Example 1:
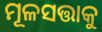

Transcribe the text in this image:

ମୂଳସତ୍ତାକୁ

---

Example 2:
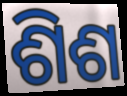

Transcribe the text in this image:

ଶିଶ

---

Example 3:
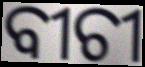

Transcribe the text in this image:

ବୀଚୀ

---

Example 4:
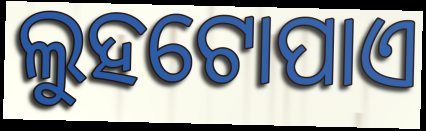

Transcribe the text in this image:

ଲୁହଟୋପାଏ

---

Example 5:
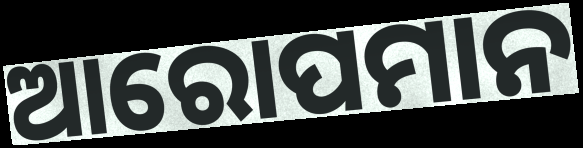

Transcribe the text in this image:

ଆରୋପମାନ